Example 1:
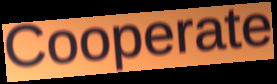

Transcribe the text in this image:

Cooperate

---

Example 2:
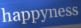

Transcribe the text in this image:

happyness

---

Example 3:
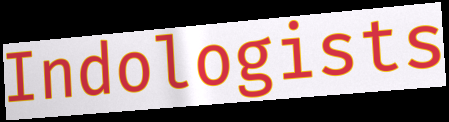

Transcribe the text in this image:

Indologists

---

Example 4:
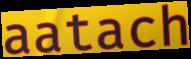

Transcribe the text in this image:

aatach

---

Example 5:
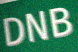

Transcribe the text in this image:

DNB